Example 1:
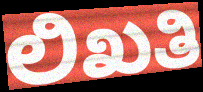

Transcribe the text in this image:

ಲಿಖತಿ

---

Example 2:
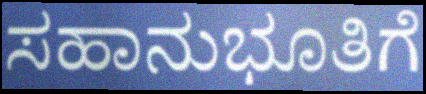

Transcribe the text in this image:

ಸಹಾನುಭೂತಿಗೆ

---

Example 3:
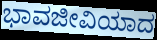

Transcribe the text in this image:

ಭಾವಜೀವಿಯಾದ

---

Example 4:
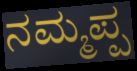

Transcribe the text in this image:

ನಮ್ಮಪ್ಪ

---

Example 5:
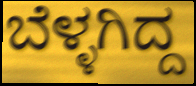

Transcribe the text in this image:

ಬೆಳ್ಳಗಿದ್ದ